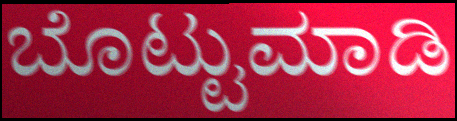
ಬೊಟ್ಟುಮಾಡಿ